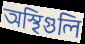
অস্থিগুলি